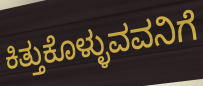
ಕಿತ್ತುಕೊಳ್ಳುವವನಿಗೆ